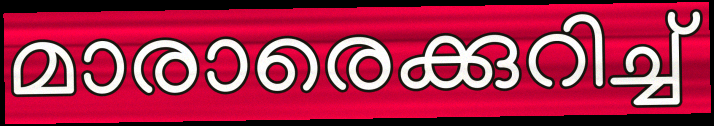
മാരാരെക്കുറിച്ച്